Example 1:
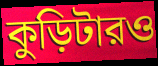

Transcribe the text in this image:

কুড়িটারও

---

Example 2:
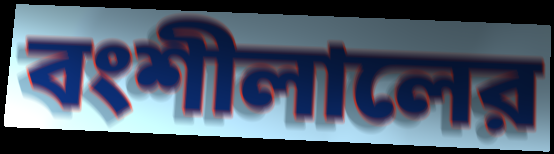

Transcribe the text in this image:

বংশীলালের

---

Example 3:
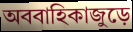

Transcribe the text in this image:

অববাহিকাজুড়ে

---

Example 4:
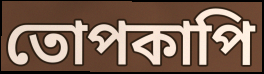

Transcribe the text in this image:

তোপকাপি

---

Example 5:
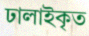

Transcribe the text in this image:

ঢালাইকৃত